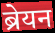
ब्रेयन